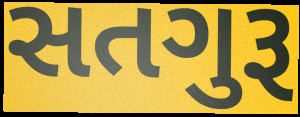
સતગુરૂ